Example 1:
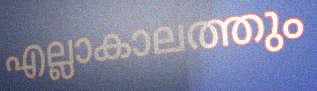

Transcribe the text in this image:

എല്ലാകാലത്തും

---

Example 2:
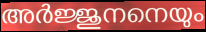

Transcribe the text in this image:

അർജ്ജുനനെയും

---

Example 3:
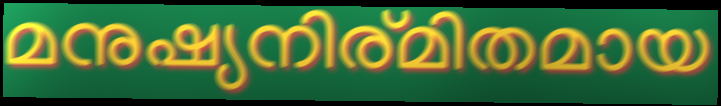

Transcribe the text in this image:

മനുഷ്യനിര്മിതമായ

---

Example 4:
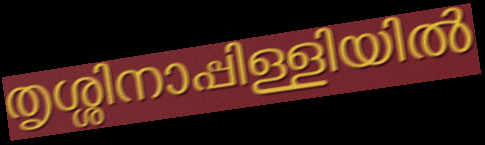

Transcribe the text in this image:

തൃശ്ശിനാപ്പിള്ളിയിൽ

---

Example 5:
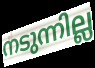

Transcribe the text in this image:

നടുന്നില്ല